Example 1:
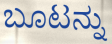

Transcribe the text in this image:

ಬೂಟನ್ನು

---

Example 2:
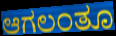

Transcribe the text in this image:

ಆಗಲಂತೂ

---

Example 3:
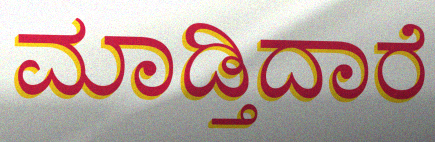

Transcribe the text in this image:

ಮಾಡ್ತಿದಾರೆ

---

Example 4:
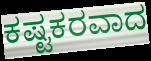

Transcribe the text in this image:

ಕಷ್ಟಕರವಾದ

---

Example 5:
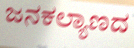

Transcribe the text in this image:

ಜನಕಲ್ಯಾಣದ